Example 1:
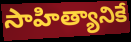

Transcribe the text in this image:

సాహిత్యానికే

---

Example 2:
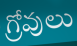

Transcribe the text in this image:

గ్రోవులు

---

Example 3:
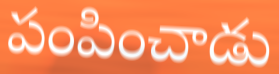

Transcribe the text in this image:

పంపించాడు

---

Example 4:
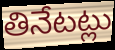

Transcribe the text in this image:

తినేటట్లు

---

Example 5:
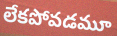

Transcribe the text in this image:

లేకపోవడమూ